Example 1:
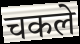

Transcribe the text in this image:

चकले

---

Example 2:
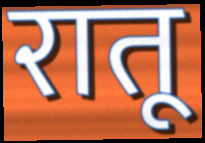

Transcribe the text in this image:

रातू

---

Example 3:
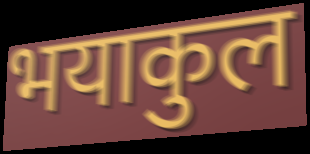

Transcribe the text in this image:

भयाकुल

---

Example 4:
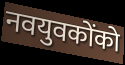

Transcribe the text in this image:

नवयुवकोंको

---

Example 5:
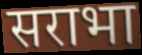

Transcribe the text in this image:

सराभा